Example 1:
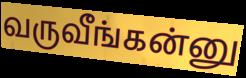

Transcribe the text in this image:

வருவீங்கன்னு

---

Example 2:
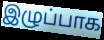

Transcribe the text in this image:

இழுப்பாக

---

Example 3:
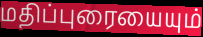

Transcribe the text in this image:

மதிப்புரையையும்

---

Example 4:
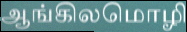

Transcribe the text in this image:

ஆங்கிலமொழி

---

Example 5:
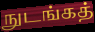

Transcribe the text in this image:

நுடங்கத்